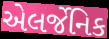
એલર્જેનિક